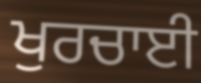
ਖੁਰਚਾਈ